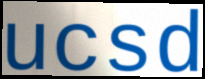
ucsd